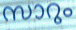
സാറും